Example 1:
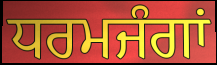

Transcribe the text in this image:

ਧਰਮਜੰਗਾਂ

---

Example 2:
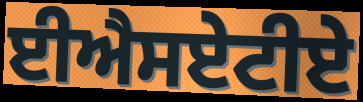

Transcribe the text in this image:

ਈਐਸਏਟੀਏ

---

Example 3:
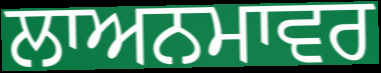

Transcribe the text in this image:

ਲਾਅਨਮਾਵਰ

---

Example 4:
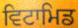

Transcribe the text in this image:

ਵਿਟਾਮਿਡ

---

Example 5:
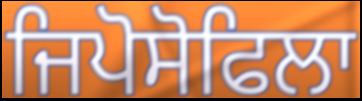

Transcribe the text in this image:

ਜਿਪੋਸੋਫਿਲਾ